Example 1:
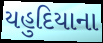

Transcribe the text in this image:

યહુદિયાના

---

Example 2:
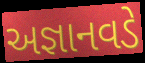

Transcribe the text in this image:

અજ્ઞાનવડે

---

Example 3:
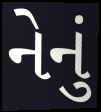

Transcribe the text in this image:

નેનું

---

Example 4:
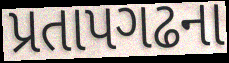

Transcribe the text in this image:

પ્રતાપગઢના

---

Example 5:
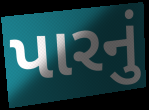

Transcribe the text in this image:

પારનું